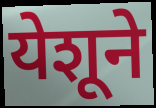
येशूने